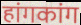
हांगकांग